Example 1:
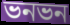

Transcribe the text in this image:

ভনভন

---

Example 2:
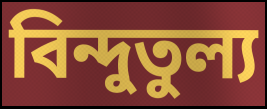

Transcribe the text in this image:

বিন্দুতুল্য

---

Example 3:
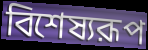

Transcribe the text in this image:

বিশেষ্যরূপ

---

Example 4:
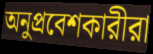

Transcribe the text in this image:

অনুপ্রবেশকারীরা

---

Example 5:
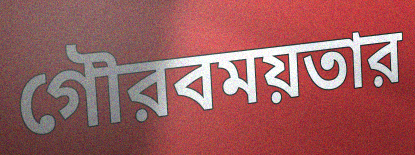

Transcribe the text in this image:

গৌরবময়তার